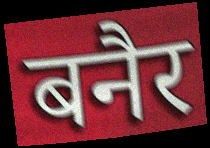
बनैर